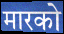
मारको